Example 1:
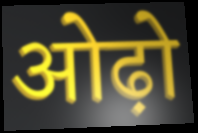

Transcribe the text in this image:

ओढ़ो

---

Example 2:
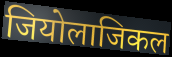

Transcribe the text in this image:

जियोलाजिकल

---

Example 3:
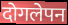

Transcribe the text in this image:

दोगलेपन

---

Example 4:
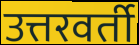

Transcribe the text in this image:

उत्तरवर्ती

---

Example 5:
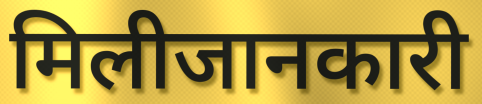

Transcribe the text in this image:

मिलीजानकारी